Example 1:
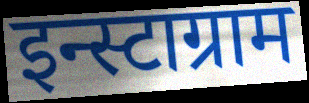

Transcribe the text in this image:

इन्स्टाग्राम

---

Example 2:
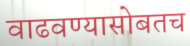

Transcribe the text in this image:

वाढवण्यासोबतच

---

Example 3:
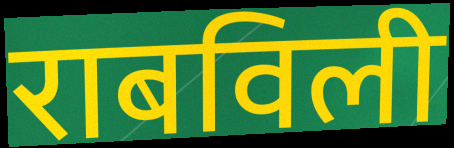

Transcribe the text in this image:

राबविली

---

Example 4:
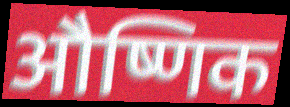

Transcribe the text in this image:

औष्णिक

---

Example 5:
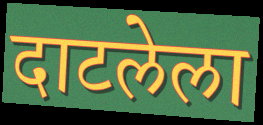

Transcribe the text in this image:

दाटलेला